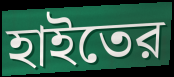
হাইতের